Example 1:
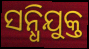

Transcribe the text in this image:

ସନ୍ଧିଯୁକ୍ତ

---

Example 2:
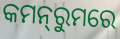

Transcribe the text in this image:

କମନ୍‌ରୁମରେ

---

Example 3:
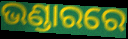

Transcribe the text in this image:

ଭଣ୍ଡାରରେ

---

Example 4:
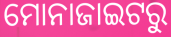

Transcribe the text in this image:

ମୋନାଜାଇଟରୁ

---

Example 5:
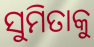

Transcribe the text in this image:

ସୁମିତାକୁ